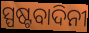
ସ୍ପଷ୍ଟବାଦିନୀ